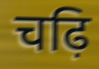
चढ़ि